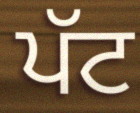
ਪੱਟ